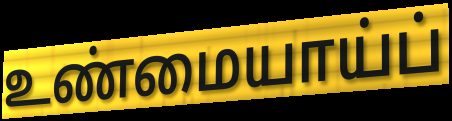
உண்மையாய்ப்